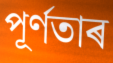
পূৰ্ণতাৰ